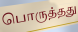
பொருத்தது